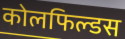
कोलफिल्डस